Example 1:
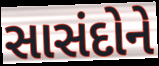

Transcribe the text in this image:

સાસંદોને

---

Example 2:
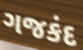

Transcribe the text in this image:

ગજકંદ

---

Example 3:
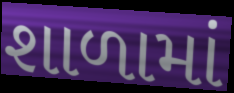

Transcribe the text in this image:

શાળામાં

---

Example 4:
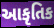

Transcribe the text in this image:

આકૃતિક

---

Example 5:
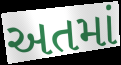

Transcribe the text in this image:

અતમાં